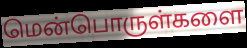
மென்பொருள்களை